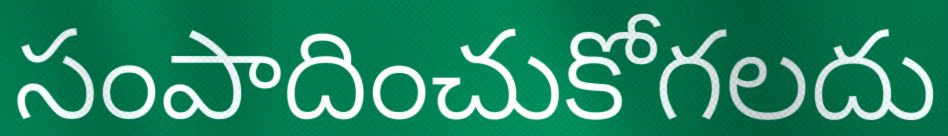
సంపాదించుకోగలదు